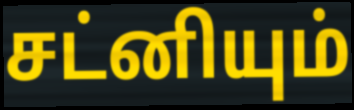
சட்னியும்